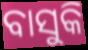
ବାସୁକି